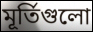
মূর্তিগুলো